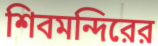
শিবমন্দিরের